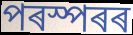
পৰস্পৰৰ